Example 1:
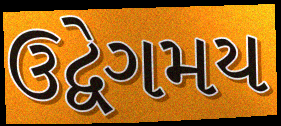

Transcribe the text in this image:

ઉદ્વેગમય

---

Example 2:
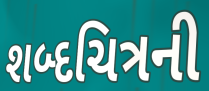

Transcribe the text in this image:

શબ્દચિત્રની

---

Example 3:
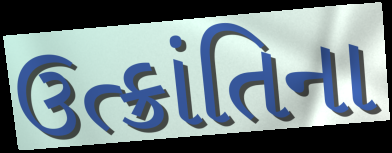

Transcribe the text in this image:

ઉત્ક્રાંતિના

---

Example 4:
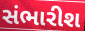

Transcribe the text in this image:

સંભારીશ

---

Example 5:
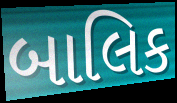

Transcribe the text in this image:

બાલિક